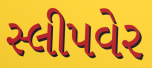
સ્લીપવેર